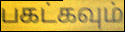
பகட்கவும்